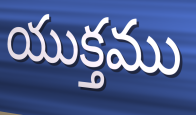
యుక్తము